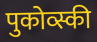
पुकोव्स्की